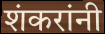
शंकरांनी